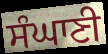
ਸੰਘਾਣੀ